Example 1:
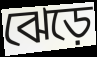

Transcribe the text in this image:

ঝেড়ে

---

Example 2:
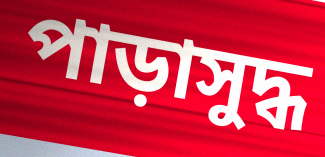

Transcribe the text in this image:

পাড়াসুদ্ধ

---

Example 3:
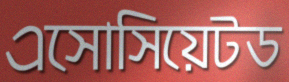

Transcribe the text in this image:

এসোসিয়েটড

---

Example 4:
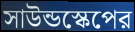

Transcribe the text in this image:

সাউন্ডস্কেপের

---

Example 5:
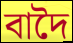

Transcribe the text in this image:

বাদৈ